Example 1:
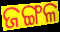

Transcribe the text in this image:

ଜଙ୍ଗଳ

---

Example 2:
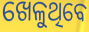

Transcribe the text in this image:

ଖେଳୁଥିବେ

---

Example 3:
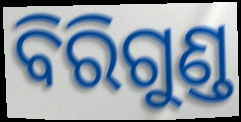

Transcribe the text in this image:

ବିରିଗୁଣ୍ଡ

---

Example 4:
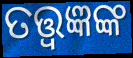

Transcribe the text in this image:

ତତ୍ତ୍ଵଜ୍ଞଙ୍କ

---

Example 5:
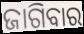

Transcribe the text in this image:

ଜାଗିବାର